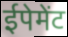
ईपेमेंट